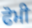
ਫੋਮੀ